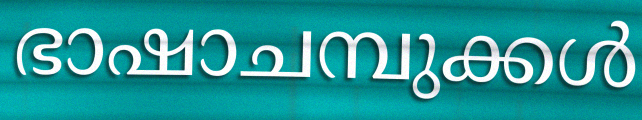
ഭാഷാചമ്പുക്കൾ